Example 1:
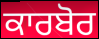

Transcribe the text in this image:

ਕਾਰਬੋਰ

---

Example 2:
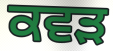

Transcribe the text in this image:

ਕਵੜ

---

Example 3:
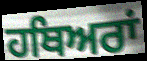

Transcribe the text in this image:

ਹਥਿਅਰਾਂ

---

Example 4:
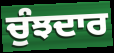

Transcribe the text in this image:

ਚੁੰਝਦਾਰ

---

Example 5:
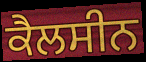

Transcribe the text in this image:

ਕੈਲਸੀਨ